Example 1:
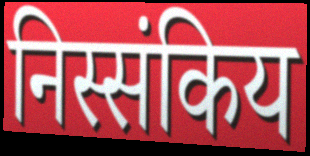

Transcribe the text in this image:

निस्संकिय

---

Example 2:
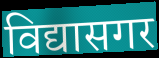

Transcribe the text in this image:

विद्यासगर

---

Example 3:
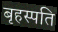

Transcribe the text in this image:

बृहस्पति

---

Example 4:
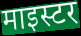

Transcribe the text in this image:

माइस्टर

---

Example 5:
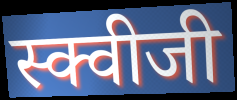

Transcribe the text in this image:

स्क्वीजी